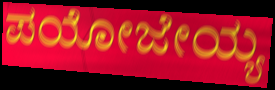
ಪಯೋಜೇಯ್ಯ